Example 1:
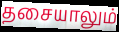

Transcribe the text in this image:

தசையாலும்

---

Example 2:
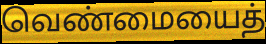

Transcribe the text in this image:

வெண்மையைத்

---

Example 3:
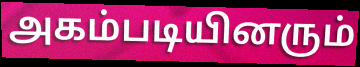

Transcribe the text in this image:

அகம்படியினரும்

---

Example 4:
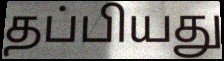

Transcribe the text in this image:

தப்பியது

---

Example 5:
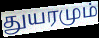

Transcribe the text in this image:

துயரமும்